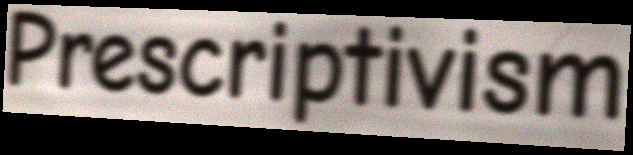
Prescriptivism